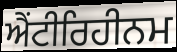
ਐਂਟੀਰਿਹੀਨਮ